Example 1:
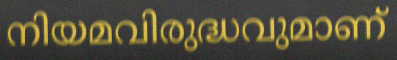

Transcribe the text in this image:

നിയമവിരുദ്ധവുമാണ്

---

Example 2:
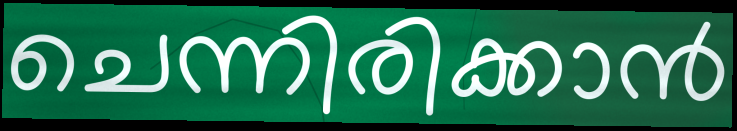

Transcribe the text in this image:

ചെന്നിരിക്കാൻ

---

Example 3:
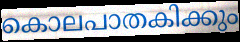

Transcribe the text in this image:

കൊലപാതകിക്കും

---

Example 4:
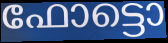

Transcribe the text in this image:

ഫോട്ടൊ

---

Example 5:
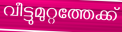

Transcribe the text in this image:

വീട്ടുമുറ്റത്തേക്ക്